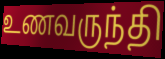
உணவருந்தி